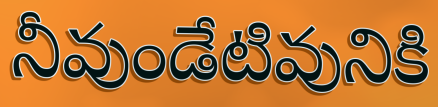
నీవుండేటివునికి